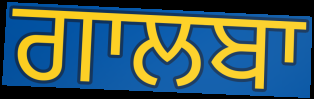
ਗਾਲਬਾ